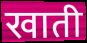
खाती